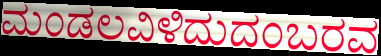
ಮಂಡಲವಿಳಿದುದಂಬರವ